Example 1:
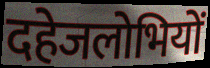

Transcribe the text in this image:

दहेजलोभियों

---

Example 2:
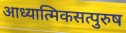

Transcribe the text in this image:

आध्यात्मिकसत्पुरुष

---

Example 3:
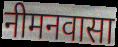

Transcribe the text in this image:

नीमनवासा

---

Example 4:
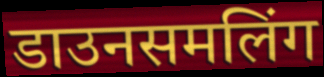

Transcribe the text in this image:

डाउनसमलिंग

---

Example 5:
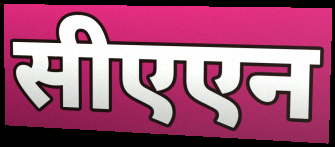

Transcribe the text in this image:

सीएएन